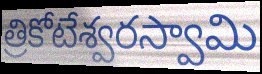
త్రికోటేశ్వరస్వామి